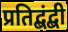
प्रतिद्बंद्बी